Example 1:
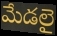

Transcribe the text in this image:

మేడలై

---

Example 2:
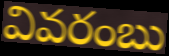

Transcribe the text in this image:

వివరంబు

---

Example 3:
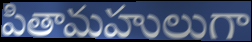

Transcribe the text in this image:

పితామహులుగా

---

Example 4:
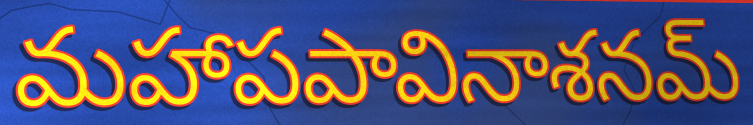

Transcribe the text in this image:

మహాపపావినాశనమ్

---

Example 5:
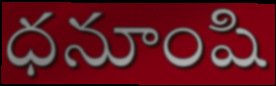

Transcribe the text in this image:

ధనూంషి